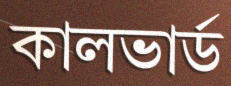
কালভার্ড